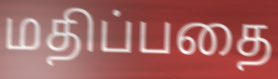
மதிப்பதை